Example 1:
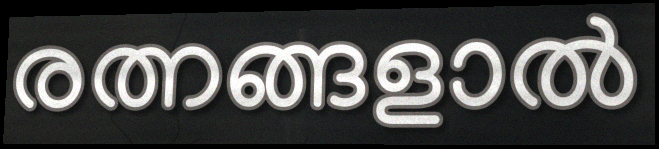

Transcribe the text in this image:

രത്നങ്ങളാൽ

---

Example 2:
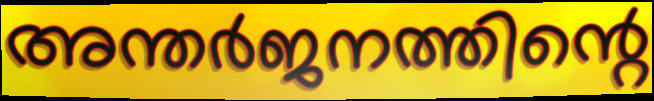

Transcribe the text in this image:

അന്തർജനത്തിന്റെ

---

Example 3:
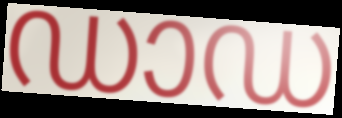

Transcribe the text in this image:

ഡാഡ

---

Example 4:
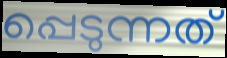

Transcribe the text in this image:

പ്പെടുന്നത്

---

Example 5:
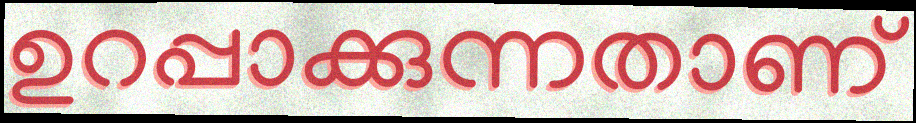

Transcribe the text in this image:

ഉറപ്പാക്കുന്നതാണ്